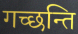
गच्छन्ति